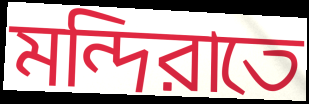
মন্দিরাতে